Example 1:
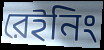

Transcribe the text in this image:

রেইনিং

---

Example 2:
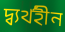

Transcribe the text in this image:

দ্ব্যর্থহীন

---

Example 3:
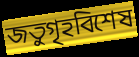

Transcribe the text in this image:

জতুগৃহবিশেষ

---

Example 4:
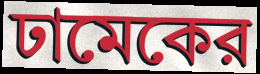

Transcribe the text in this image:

ঢামেকের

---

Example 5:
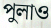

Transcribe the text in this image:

পুলাও